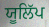
ਯੂਲਿੱਪ